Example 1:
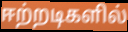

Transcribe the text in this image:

ஈற்றடிகளில்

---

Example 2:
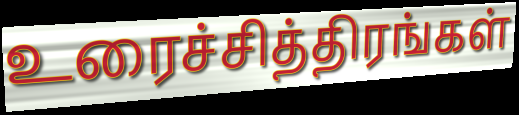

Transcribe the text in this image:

உரைச்சித்திரங்கள்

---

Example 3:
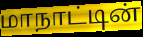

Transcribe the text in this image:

மாநாட்டின்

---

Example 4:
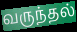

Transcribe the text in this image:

வருந்தல்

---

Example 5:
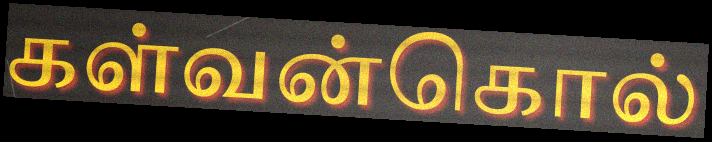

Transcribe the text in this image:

கள்வன்கொல்